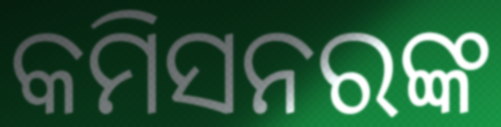
କମିସନରଙ୍କ